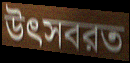
উৎসবরত